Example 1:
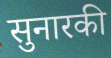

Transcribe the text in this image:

सुनारकी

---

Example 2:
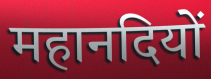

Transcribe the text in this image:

महानदियों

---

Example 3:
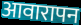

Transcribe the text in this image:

आवारापन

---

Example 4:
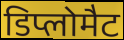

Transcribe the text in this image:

डिप्लोमैट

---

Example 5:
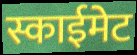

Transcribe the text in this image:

स्काईमेट